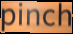
pinch